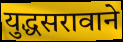
युद्धसरावाने